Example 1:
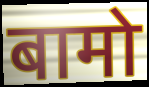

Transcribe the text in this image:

बामो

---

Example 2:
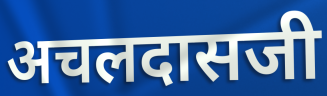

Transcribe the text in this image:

अचलदासजी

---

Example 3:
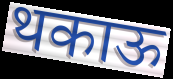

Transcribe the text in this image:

थकाऊ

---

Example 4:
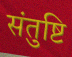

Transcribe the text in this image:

संतुष्टि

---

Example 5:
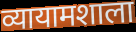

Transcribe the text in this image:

व्यायामशाला